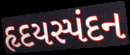
હૃદયસ્પંદન